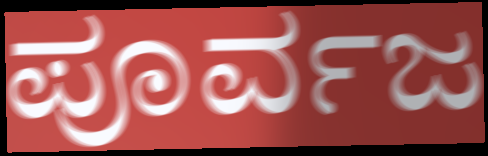
ಪೂರ್ವಜ